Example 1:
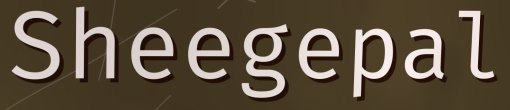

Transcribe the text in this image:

Sheegepal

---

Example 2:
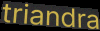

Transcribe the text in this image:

triandra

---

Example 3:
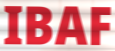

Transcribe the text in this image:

IBAF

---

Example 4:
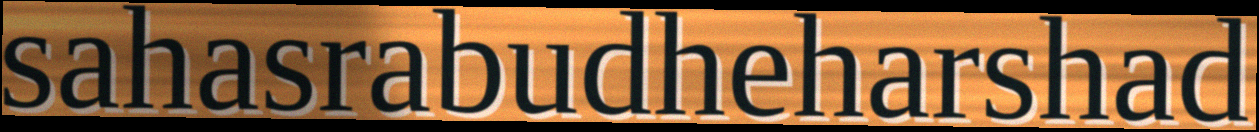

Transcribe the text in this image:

sahasrabudheharshad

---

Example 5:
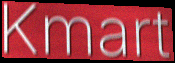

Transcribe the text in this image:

Kmart